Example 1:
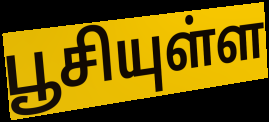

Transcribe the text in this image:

பூசியுள்ள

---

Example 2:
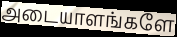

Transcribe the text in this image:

அடையாளங்களே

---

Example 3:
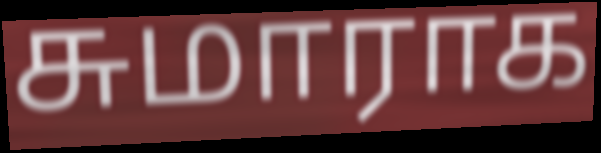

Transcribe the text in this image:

சுமாராக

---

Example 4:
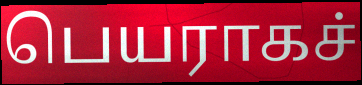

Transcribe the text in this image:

பெயராகச்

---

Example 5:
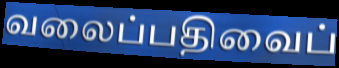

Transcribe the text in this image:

வலைப்பதிவைப்